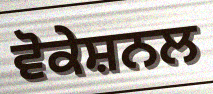
ਵੋਕੇਸ਼ਨਲ